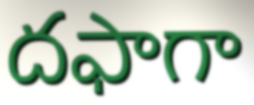
దఫాగా